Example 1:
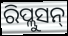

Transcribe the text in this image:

ରିପ୍ଲୁସନ୍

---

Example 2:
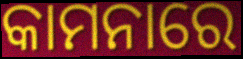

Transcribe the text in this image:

କାମନାରେ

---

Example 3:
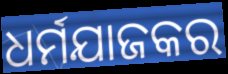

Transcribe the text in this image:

ଧର୍ମଯାଜକର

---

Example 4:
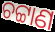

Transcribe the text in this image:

ଚଟ୍ଟାଣ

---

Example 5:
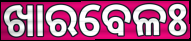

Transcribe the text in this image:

ଖାରବେଳଃ